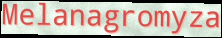
Melanagromyza